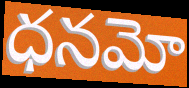
ధనమో